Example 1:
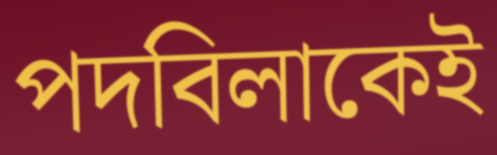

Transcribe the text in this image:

পদবিলাকেই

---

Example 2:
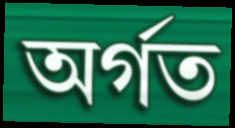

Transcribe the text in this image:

অৰ্গত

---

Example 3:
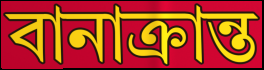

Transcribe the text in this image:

বানাক্ৰান্ত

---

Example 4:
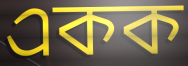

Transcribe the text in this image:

একক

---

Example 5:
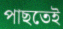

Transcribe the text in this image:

পাছতেই